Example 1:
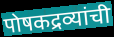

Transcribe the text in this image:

पोषकद्रव्यांची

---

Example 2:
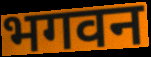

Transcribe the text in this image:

भगवन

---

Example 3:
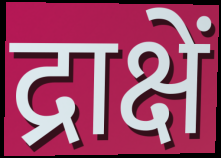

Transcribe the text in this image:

द्राक्षें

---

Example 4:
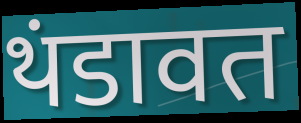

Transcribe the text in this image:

थंडावत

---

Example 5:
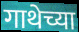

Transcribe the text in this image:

गाथेच्या